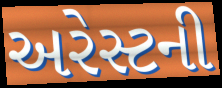
અરેસ્ટની